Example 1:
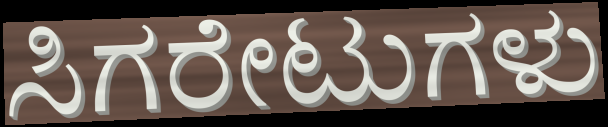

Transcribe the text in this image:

ಸಿಗರೇಟುಗಳು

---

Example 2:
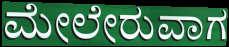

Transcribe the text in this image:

ಮೇಲೇರುವಾಗ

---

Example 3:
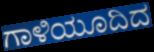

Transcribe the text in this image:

ಗಾಳಿಯೂದಿದ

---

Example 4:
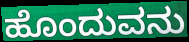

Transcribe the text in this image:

ಹೊಂದುವನು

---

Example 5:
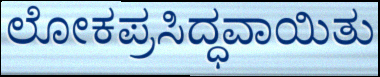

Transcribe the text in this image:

ಲೋಕಪ್ರಸಿದ್ಧವಾಯಿತು